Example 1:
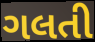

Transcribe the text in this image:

ગલતી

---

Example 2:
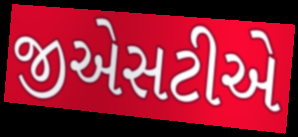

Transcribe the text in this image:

જીએસટીએ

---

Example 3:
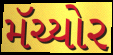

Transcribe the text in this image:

મૅચ્યોર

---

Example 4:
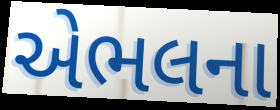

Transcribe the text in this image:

એભલના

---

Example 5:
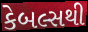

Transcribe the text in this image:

કેબલ્સથી